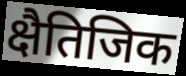
क्षैतिजिक